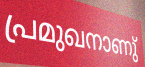
പ്രമുഖനാണു്